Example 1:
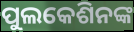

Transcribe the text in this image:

ପୁଲକେଶିନଙ୍କ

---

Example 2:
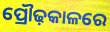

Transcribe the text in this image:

ପ୍ରୌଢ଼କାଳରେ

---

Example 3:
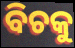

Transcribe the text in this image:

ବିଚକୁ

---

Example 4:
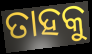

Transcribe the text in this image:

ତାହକୁ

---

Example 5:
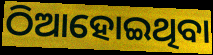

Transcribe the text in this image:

ଠିଆହୋଇଥିବା